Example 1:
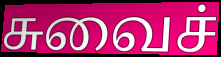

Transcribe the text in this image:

சுவைச்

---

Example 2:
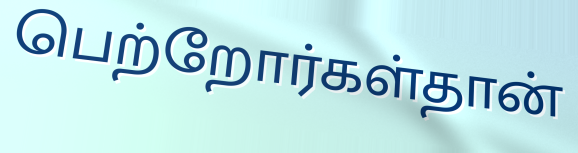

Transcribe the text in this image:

பெற்றோர்கள்தான்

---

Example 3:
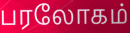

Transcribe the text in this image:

பரலோகம்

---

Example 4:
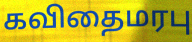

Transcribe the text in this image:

கவிதைமரபு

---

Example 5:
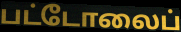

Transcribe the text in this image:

பட்டோலைப்